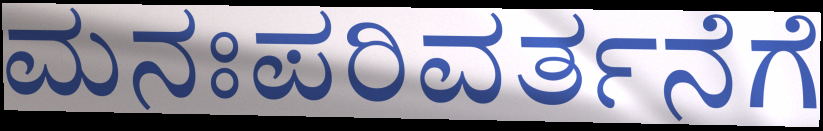
ಮನಃಪರಿವರ್ತನೆಗೆ